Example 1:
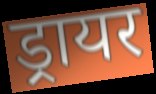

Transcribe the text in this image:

ड्रायर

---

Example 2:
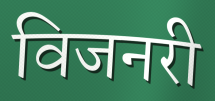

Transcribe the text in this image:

विजनरी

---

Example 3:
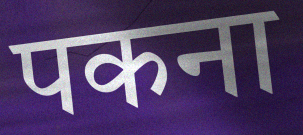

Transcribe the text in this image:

पकना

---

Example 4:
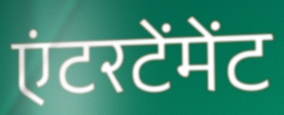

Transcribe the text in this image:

एंटरटेंमेंट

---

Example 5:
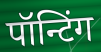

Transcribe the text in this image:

पॉन्टिंग